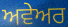
ਅਵੇਅਰ